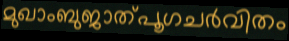
മുഖാംബുജാത്പൂഗചർവിതം